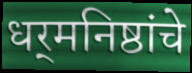
धर्मनिष्ठांचे